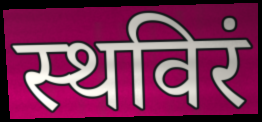
स्थविरं